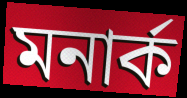
মনার্ক